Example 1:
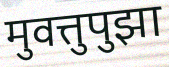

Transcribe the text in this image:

मुवत्तुपुझा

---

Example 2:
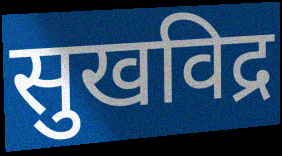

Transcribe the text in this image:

सुखविद्र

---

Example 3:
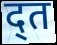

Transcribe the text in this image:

द्त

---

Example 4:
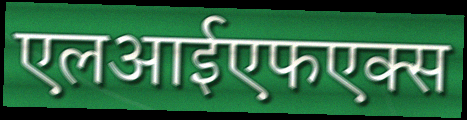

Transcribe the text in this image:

एलआईएफएक्स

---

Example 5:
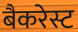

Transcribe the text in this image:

बैकरेस्ट